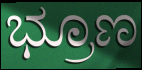
ಭ್ರೂಣ